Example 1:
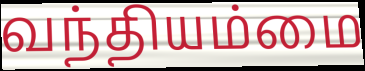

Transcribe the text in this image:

வந்தியம்மை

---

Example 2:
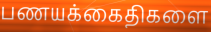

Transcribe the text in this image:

பணயக்கைதிகளை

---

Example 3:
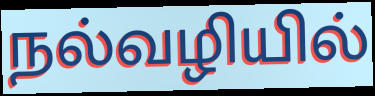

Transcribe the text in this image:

நல்வழியில்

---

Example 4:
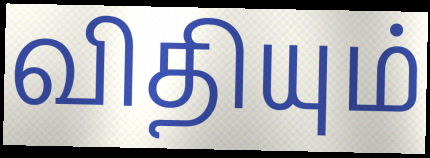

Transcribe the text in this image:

விதியும்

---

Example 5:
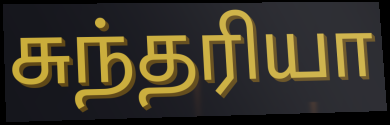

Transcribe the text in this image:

சுந்தரியா